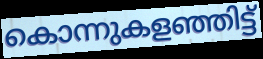
കൊന്നുകളഞ്ഞിട്ട്